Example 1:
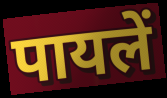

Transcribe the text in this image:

पायलें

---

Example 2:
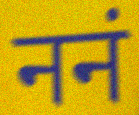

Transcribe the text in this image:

ननं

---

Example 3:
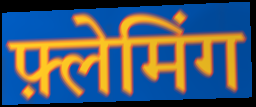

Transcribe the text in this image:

फ़्लेमिंग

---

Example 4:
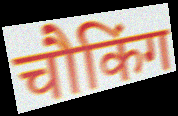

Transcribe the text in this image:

चौकिंग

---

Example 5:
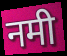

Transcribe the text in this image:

नमी